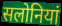
सलोनियां